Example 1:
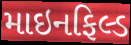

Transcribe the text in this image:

માઇનફિલ્ડ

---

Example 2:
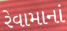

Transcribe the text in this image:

રેવામાનાં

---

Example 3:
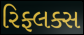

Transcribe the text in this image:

રિફ્લક્સ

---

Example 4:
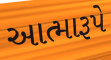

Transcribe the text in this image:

આત્મારૂપે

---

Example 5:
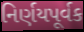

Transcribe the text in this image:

નિર્ણયપૂર્વક